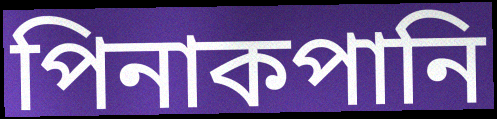
পিনাকপানি